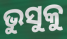
ଭୁସୁକୁ